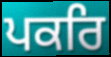
ਪਕਰਿ